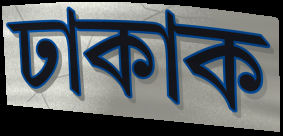
ঢাকাক